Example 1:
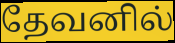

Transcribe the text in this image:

தேவனில்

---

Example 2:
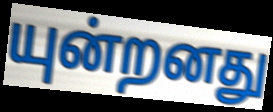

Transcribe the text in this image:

யுன்றனது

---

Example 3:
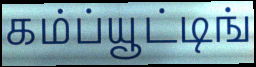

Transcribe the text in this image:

கம்ப்யூட்டிங்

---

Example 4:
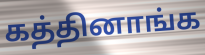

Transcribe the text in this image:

கத்தினாங்க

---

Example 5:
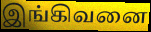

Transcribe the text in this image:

இங்கிவனை